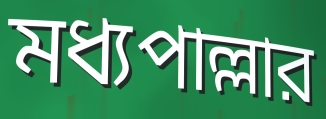
মধ্যপাল্লার